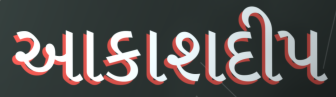
આકાશદીપ